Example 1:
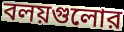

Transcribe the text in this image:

বলয়গুলোর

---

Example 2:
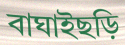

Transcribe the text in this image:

বাঘাইছড়ি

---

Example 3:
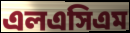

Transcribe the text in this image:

এলএসিএম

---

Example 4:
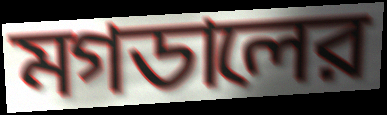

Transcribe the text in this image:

মগডালের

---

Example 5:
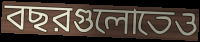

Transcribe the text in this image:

বছরগুলোতেও